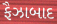
ફૈઝાબાદ